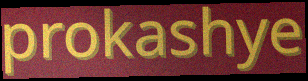
prokashye